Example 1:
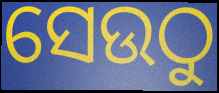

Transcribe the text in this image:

ସେଉଠୁ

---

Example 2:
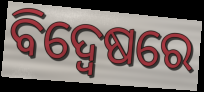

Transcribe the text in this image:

ବିଦ୍ୱେଷରେ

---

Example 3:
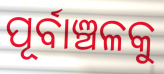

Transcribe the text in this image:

ପୂର୍ବାଞ୍ଚଳକୁ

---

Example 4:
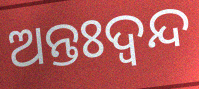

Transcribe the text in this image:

ଅନ୍ତଃଦ୍ବନ୍ଦ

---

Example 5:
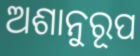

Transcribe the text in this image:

ଅଶାନୁରୂପ